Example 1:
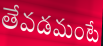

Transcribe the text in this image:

తేవడమంటే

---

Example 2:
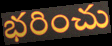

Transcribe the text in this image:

భరించు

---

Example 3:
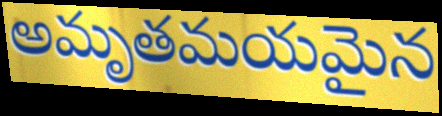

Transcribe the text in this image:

అమృతమయమైన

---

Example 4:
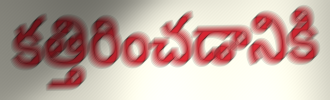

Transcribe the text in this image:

కత్తిరించడానికి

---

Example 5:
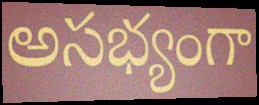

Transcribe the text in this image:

అసభ్యంగా